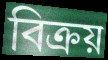
বিক্ৰয়